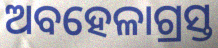
ଅବହେଳାଗ୍ରସ୍ତ